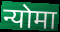
न्योमा